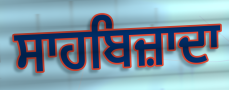
ਸਾਹਬਿਜ਼ਾਦਾ